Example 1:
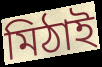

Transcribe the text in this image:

মিঠাই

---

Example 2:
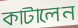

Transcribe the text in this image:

কাটালেন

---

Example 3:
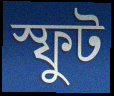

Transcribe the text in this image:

স্ফুট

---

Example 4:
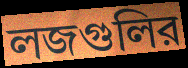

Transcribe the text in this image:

লজগুলির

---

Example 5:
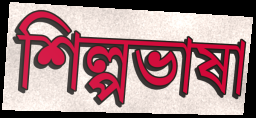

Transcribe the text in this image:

শিল্পভাষা